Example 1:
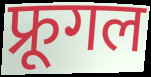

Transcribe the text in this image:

फ्रूगल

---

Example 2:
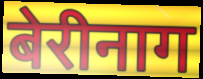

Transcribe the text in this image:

बेरीनाग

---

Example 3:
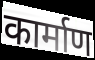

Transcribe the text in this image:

कार्माण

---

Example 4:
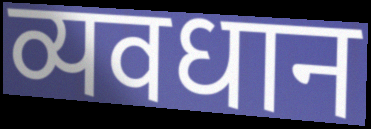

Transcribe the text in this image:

व्यवधान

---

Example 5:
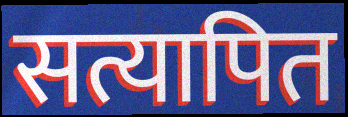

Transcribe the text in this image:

सत्यापित